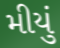
મીયું